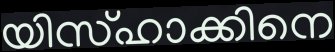
യിസ്ഹാക്കിനെ